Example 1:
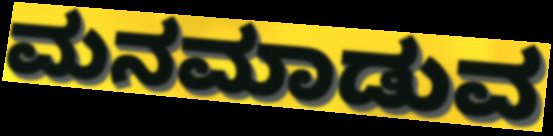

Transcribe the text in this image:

ಮನಮಾಡುವ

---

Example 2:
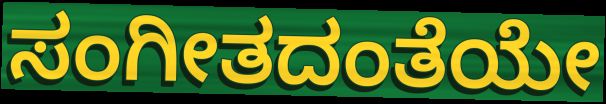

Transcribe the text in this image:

ಸಂಗೀತದಂತೆಯೇ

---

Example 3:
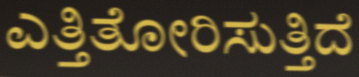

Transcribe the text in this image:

ಎತ್ತಿತೋರಿಸುತ್ತಿದೆ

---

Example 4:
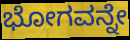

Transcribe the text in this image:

ಭೋಗವನ್ನೇ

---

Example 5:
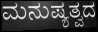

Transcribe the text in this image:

ಮನುಷ್ಯತ್ವದ